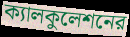
ক্যালকুলেশনের